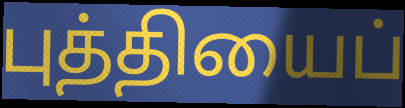
புத்தியைப்